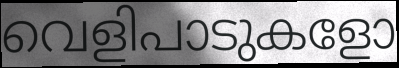
വെളിപാടുകളോ